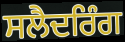
ਸਲੈਦਰਿੰਗ